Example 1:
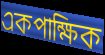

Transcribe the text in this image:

একপাক্ষিক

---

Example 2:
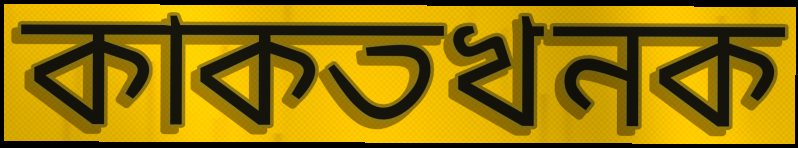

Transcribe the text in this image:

কাকতখনক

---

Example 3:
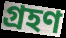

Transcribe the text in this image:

গ্ৰহণ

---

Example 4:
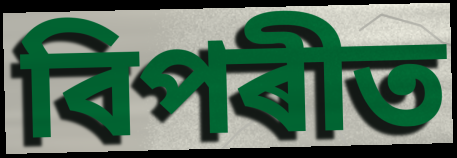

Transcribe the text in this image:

বিপৰীত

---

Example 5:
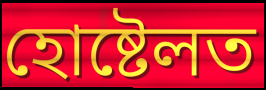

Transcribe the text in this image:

হোষ্টেলত